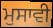
ਮੁਸਾਵੀ